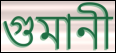
গুমানী